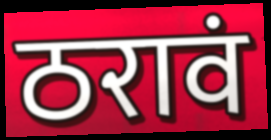
ठरावं